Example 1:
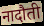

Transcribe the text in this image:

नादौती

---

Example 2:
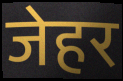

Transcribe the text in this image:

जेहर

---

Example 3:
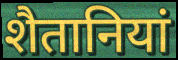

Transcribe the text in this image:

शैतानियां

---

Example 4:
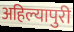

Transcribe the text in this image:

अहिल्यापुरी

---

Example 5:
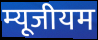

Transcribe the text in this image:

म्यूजीयम